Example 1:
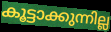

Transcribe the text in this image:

കൂട്ടാക്കുന്നില്ല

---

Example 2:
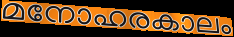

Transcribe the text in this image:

മനോഹരകാലം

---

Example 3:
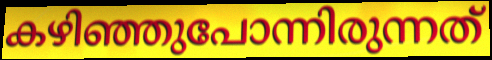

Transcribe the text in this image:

കഴിഞ്ഞുപോന്നിരുന്നത്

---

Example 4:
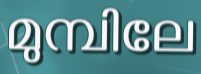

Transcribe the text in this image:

മുമ്പിലേ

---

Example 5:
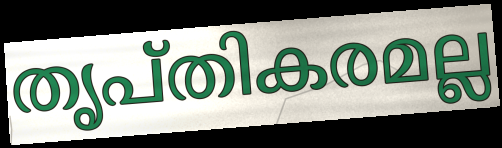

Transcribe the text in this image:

തൃപ്തികരമല്ല